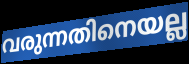
വരുന്നതിനെയല്ല